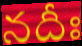
నదీః